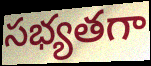
సభ్యతగా